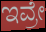
ಇವ್ರೇ